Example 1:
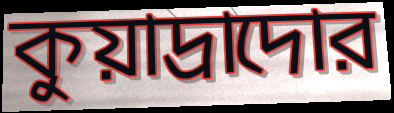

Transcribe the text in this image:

কুয়াদ্রাদোর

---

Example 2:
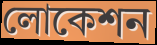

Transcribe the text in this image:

লোকেশন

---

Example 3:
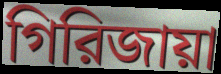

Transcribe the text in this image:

গিরিজায়া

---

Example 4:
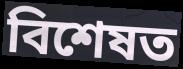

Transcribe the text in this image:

বিশেষত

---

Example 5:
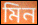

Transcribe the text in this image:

মিন